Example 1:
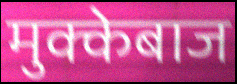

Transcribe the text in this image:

मुक्केबाज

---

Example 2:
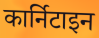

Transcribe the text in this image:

कार्निटाइन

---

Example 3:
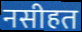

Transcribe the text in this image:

नसीहत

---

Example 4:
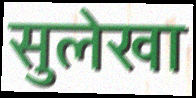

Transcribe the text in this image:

सुलेखा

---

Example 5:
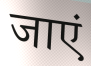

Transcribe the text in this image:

जाएं